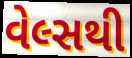
વેલ્સથી